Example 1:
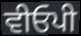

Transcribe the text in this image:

ਵੀਓਪੀ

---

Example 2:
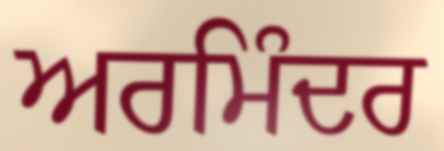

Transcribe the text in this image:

ਅਰਮਿੰਦਰ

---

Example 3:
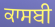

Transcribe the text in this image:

ਕਾਸਬੀ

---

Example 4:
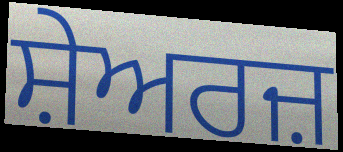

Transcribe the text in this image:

ਸ਼ੇਅਰਜ਼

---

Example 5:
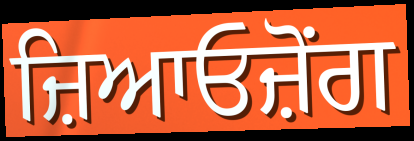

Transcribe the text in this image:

ਜ਼ਿਆਓਜ਼ੋਂਗ